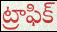
ట్రాఫిక్